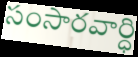
సంసారవార్ధి